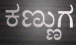
ಕಣ್ಣುಗ